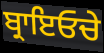
ਬ੍ਰਾਇਓਚੇ